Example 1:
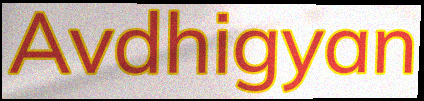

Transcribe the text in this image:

Avdhigyan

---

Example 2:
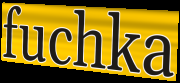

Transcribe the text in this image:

fuchka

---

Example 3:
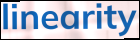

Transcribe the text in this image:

linearity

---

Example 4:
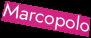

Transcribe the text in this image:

Marcopolo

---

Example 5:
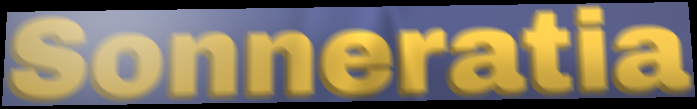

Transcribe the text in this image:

Sonneratia